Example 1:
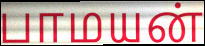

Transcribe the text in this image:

பாமயன்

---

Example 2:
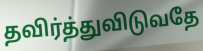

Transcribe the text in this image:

தவிர்த்துவிடுவதே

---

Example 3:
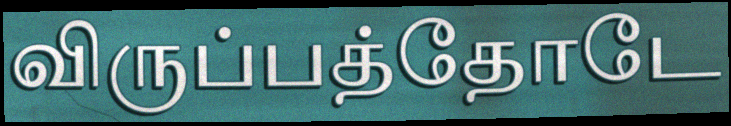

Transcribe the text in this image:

விருப்பத்தோடே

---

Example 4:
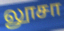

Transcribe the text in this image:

லூசா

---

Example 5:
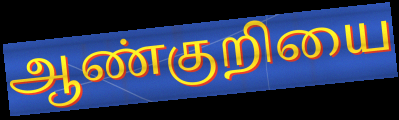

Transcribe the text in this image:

ஆண்குறியை